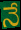
నే